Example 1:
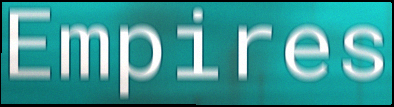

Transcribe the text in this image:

Empires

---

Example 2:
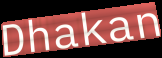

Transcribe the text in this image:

Dhakan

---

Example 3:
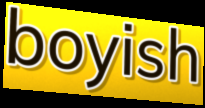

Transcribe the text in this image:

boyish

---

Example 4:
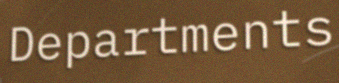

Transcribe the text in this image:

Departments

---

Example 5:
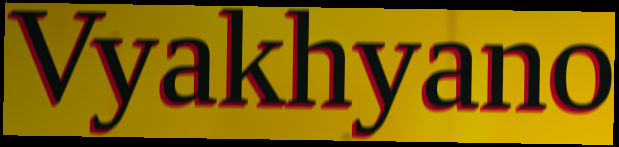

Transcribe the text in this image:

Vyakhyano